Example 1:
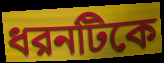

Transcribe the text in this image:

ধরনটিকে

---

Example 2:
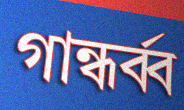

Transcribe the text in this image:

গান্ধর্ব্ব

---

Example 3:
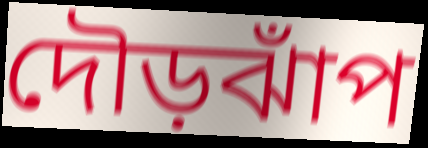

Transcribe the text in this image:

দৌড়ঝাঁপ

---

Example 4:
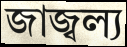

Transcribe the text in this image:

জাজ্বল্য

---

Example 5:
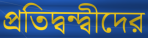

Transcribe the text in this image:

প্রতিদ্বন্দ্বীদের